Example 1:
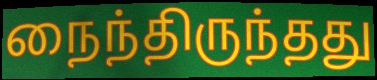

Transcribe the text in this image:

நைந்திருந்தது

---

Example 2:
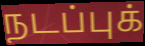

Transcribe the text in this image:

நடப்புக்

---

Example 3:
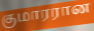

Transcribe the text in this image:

குமாரரான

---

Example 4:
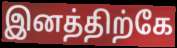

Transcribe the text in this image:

இனத்திற்கே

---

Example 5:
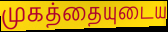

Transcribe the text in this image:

முகத்தையுடைய